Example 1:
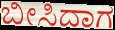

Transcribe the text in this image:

ಬೀಸಿದಾಗ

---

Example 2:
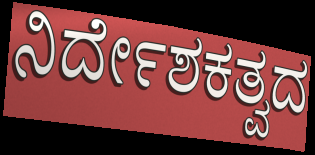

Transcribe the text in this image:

ನಿರ್ದೇಶಕತ್ವದ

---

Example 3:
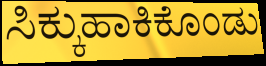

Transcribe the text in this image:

ಸಿಕ್ಕುಹಾಕಿಕೊಂಡು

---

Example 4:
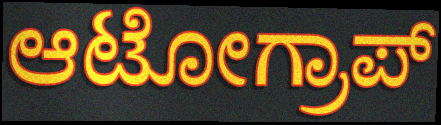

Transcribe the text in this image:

ಆಟೋಗ್ರಾಪ್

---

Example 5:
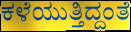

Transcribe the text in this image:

ಕಳೆಯುತ್ತಿದ್ದಂತೆ